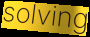
solving